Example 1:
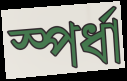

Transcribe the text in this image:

স্পর্ধা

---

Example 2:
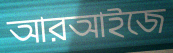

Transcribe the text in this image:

আরআইজে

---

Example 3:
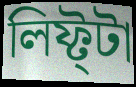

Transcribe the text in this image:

লিফ্ট্টা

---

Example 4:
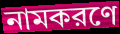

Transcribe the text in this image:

নামকরণে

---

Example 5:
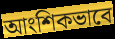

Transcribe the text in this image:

আংশিকভাবে